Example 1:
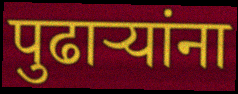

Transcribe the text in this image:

पुढाऱ्यांना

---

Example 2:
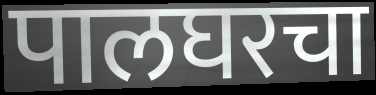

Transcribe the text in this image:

पालघरचा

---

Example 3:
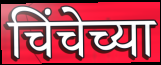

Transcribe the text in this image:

चिंचेच्या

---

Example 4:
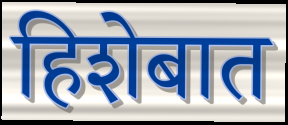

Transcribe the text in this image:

हिशेबात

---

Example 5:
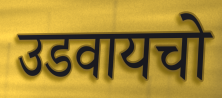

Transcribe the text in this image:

उडवायचो